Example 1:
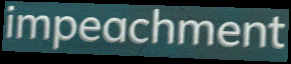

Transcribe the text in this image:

impeachment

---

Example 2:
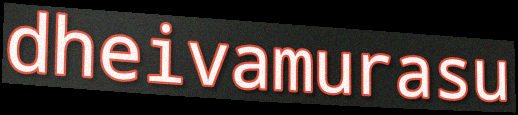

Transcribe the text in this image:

dheivamurasu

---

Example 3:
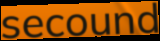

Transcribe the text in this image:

secound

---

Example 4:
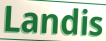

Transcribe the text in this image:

Landis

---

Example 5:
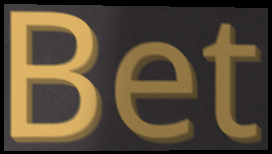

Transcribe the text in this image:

Bet